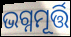
ଭଗ୍ନମୂର୍ତ୍ତି